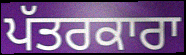
ਪੱਤਰਕਾਰਾ